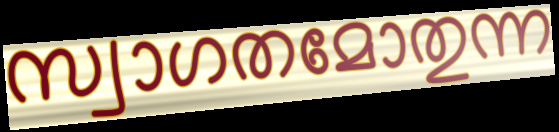
സ്വാഗതമോതുന്ന